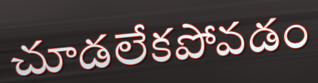
చూడలేకపోవడం